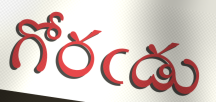
గోరఁడు